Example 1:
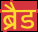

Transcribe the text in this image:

ब्रैड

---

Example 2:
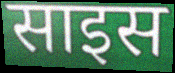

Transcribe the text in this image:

साइस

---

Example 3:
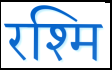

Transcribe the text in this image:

रश्मि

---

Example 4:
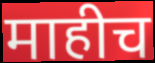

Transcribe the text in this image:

माहीच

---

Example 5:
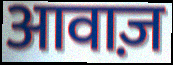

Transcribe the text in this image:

आवाज़